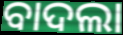
ବାଦଲା